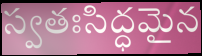
స్వతఃసిద్ధమైన